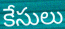
కేసులు